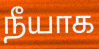
நீயாக